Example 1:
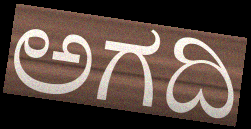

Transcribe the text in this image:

ಅಗದಿ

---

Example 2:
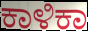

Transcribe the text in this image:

ಕಾಳಿಕಾ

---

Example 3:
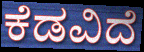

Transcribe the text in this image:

ಕೆಡವಿದೆ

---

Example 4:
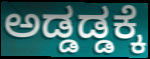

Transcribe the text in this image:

ಅಡ್ಡಡ್ಡಕ್ಕೆ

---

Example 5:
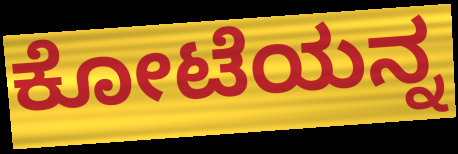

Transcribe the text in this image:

ಕೋಟೆಯನ್ನ